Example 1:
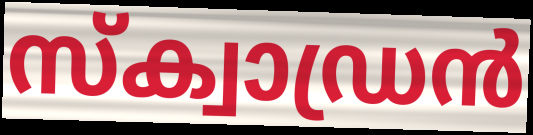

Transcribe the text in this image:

സ്ക്വാഡ്രൻ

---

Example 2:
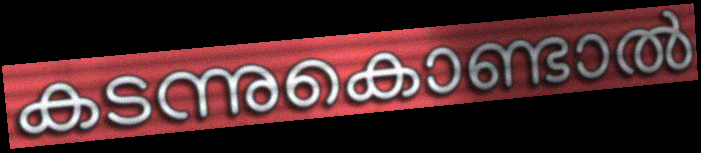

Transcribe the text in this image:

കടന്നുകൊണ്ടാൽ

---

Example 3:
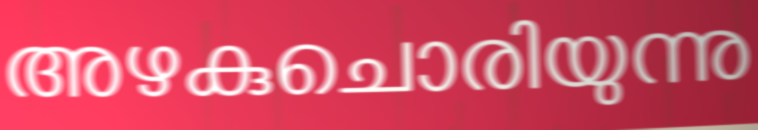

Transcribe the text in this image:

അഴകുചൊരിയുന്നു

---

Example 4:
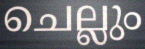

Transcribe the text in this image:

ചെല്ലും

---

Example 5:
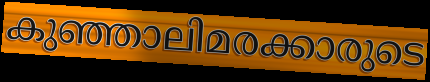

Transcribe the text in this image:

കുഞ്ഞാലിമരക്കാരുടെ